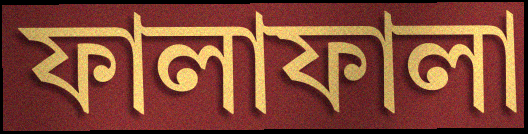
ফালাফালা